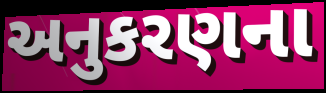
અનુકરણના